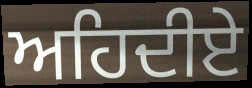
ਅਹਿਦੀਏ